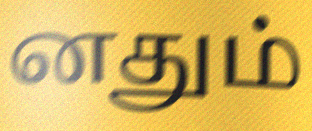
னதும்